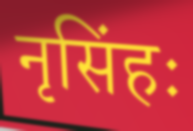
नृसिंहः